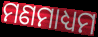
ମଣମାଧ୍ୟମ